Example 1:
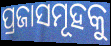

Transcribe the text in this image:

ପ୍ରଜାସମୂହକୁ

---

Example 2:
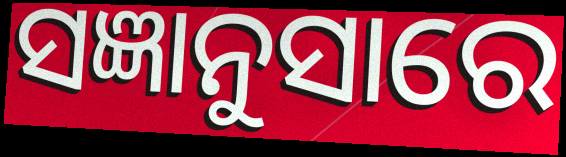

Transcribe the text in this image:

ସଜ୍ଞାନୁସାରେ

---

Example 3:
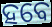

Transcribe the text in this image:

ହବେ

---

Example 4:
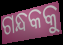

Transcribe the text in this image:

ଗନ୍ଧକକୁ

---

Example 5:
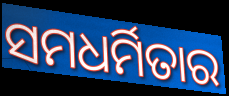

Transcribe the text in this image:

ସମଧର୍ମିତାର